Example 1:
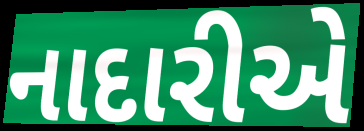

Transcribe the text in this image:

નાદારીએ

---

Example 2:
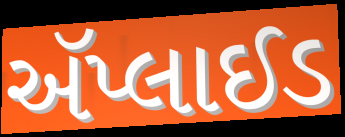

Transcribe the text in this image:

ઍપ્લાઈડ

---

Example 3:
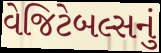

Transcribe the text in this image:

વેજિટેબલ્સનું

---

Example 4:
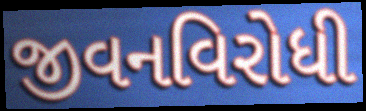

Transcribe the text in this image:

જીવનવિરોધી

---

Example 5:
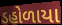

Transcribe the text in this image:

ડહોળાયા